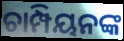
ଚାମ୍ପିୟନଙ୍କ